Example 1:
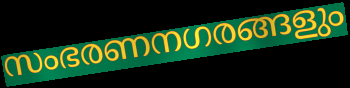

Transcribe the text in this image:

സംഭരണനഗരങ്ങളും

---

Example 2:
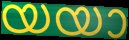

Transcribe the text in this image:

യയാ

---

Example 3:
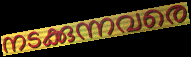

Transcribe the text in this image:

നടക്കുന്നവരെ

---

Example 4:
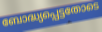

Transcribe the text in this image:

ബോദ്ധ്യപ്പെട്ടതോടെ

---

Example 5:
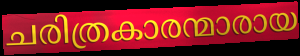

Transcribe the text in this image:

ചരിത്രകാരന്മാരായ